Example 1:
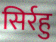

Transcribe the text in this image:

सिर्रहु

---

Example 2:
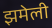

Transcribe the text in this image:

झमेली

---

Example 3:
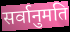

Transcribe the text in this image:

सर्वानुमति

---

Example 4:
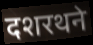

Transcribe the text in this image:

दशरथने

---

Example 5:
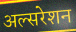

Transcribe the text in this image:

अल्सरेशन